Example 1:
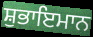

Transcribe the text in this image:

ਸ਼ੁਭਾਇਮਾਨ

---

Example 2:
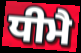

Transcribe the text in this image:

ਧੀਮੈ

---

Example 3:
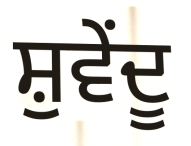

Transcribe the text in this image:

ਸ਼ੁਵੇਂਦੂ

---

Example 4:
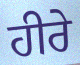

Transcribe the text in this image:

ਹੀਰੇ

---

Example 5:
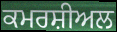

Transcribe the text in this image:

ਕਮਰਸ਼ੀਅਲ